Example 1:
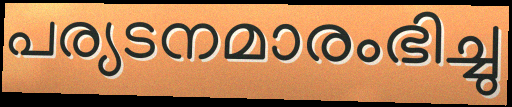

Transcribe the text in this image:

പര്യടനമാരംഭിച്ചു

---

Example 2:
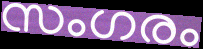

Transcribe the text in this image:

സംഗരം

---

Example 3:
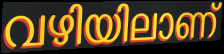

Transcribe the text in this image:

വഴിയിലാണ്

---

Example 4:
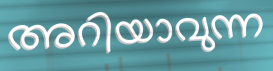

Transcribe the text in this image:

അറിയാവുന്ന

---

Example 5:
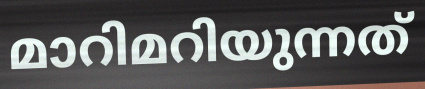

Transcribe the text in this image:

മാറിമറിയുന്നത്